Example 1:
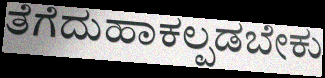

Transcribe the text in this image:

ತೆಗೆದುಹಾಕಲ್ಪಡಬೇಕು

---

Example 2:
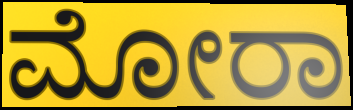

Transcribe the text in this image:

ಮೋರಾ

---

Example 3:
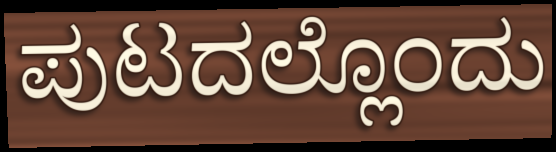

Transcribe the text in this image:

ಪುಟದಲ್ಲೊಂದು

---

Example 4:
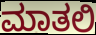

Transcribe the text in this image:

ಮಾತಲಿ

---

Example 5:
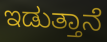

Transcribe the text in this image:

ಇಡುತ್ತಾನೆ